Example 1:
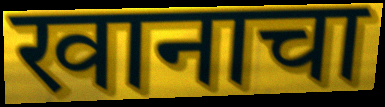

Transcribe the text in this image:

खानाचा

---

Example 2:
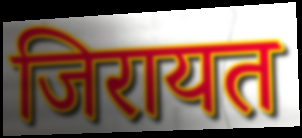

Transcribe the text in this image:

जिरायत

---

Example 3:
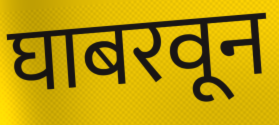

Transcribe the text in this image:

घाबरवून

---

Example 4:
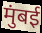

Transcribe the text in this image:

मुंबई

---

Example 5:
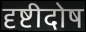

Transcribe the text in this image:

दृष्टीदोष